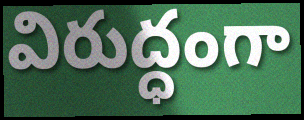
విరుద్ధంగా